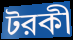
টরকী